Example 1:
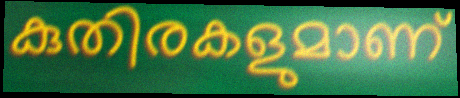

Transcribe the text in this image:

കുതിരകളുമാണ്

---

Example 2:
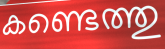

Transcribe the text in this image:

കണ്ടെത്തു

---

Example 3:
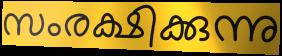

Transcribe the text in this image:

സംരക്ഷിക്കുന്നു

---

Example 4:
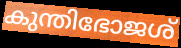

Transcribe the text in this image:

കുന്തിഭോജശ്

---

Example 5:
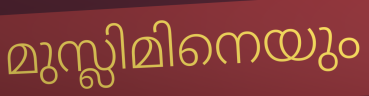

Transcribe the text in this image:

മുസ്ലിമിനെയും